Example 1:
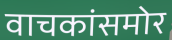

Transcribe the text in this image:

वाचकांसमोर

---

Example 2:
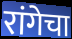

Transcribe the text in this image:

रांगेचा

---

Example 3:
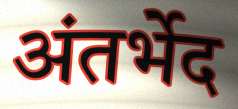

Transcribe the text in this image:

अंतर्भेद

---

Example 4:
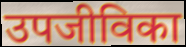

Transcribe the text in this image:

उपजीविका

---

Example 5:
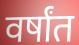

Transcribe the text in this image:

वर्षांत